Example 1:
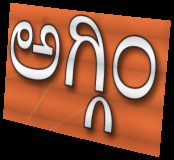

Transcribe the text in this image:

ಅಗ್ಗಿಂ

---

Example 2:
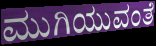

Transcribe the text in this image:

ಮುಗಿಯುವಂತೆ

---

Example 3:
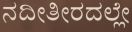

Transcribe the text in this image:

ನದೀತೀರದಲ್ಲೇ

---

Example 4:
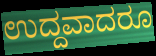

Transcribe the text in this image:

ಉದ್ದವಾದರೂ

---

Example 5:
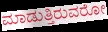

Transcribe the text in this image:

ಮಾಡುತ್ತಿರುವರೋ